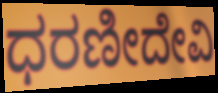
ಧರಣೀದೇವಿ